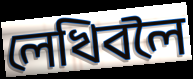
লেখিবলৈ